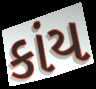
કાંય